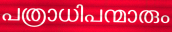
പത്രാധിപന്മാരും